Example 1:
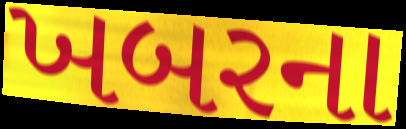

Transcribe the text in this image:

ખબરના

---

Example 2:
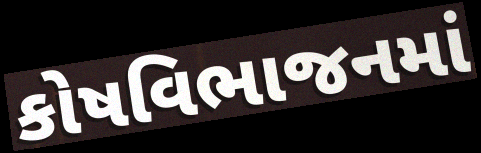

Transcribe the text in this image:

કોષવિભાજનમાં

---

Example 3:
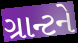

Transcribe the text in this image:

ગ્રાન્ટને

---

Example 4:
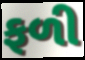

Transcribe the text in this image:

ફળી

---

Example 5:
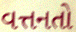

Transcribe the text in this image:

વત્તનતો